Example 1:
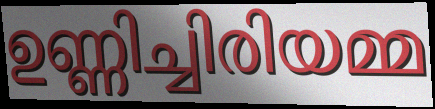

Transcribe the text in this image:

ഉണ്ണിച്ചിരിയമ്മ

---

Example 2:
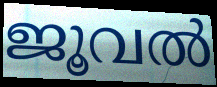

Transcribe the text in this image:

ജൂവൽ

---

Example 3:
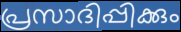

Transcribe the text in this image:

പ്രസാദിപ്പിക്കും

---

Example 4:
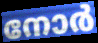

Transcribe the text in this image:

നോർ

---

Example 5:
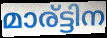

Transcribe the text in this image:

മാര്ട്ടിന